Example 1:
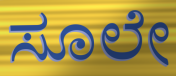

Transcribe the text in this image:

ಸೂಲೇ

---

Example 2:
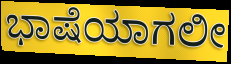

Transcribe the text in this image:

ಭಾಷೆಯಾಗಲೀ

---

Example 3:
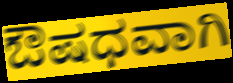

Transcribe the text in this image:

ಔಷಧವಾಗಿ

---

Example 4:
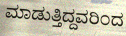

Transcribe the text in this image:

ಮಾಡುತ್ತಿದ್ದವರಿಂದ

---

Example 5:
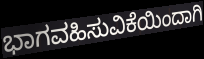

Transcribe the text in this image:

ಭಾಗವಹಿಸುವಿಕೆಯಿಂದಾಗಿ